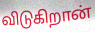
விடுகிறான்